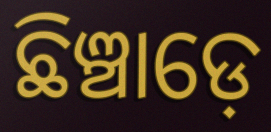
ଛିଞ୍ଚାଡ଼େ